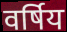
वर्षिय